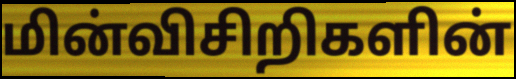
மின்விசிறிகளின்